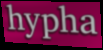
hypha